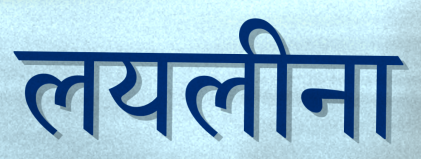
लयलीना